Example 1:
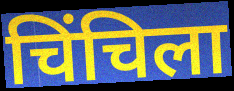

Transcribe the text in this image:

चिंचिला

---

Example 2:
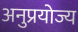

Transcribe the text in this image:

अनुप्रयोज्य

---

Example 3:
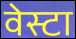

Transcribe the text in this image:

वेस्टा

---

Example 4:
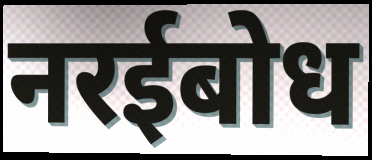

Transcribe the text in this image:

नरईबोध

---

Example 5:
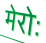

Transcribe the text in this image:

मेरोः